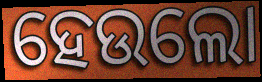
ହେଉଲୋ